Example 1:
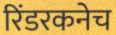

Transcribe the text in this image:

रिंडरकनेच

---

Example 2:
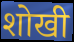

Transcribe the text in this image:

शोखी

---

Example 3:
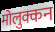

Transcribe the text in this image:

मोलुक्कन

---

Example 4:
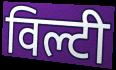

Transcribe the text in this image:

विल्टी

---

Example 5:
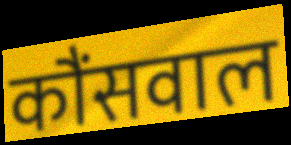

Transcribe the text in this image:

कौंसवाल